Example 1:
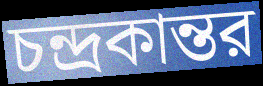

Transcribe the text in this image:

চন্দ্রকান্তর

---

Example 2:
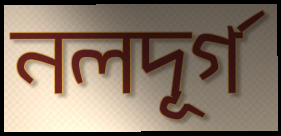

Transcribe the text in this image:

নলদূর্গ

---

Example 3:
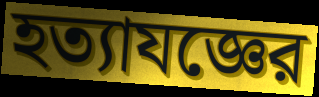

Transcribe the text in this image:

হত্যাযজ্ঞের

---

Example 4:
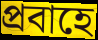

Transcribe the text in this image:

প্রবাহে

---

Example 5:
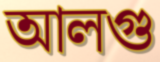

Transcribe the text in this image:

আলগু